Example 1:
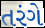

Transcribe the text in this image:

તરંગે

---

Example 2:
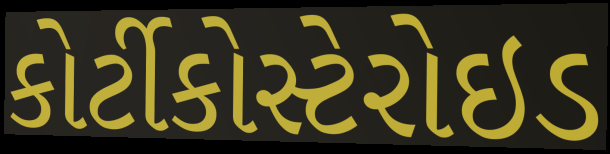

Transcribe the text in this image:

કોર્ટીકોસ્ટેરોઇડ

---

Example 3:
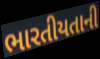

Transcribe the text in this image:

ભારતીયતાની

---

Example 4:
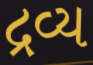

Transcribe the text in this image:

દ્રવ્ય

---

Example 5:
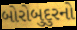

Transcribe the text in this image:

બોરોબુદુરનો